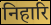
निहारि